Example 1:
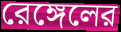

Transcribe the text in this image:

রেঙ্গেলের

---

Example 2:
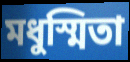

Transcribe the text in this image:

মধুস্মিতা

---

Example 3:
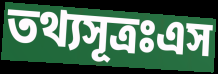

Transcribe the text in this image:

তথ্যসূত্রঃএস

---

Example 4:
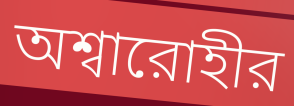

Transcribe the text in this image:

অশ্বারোহীর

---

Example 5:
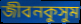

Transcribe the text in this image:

জীবনকুসুম